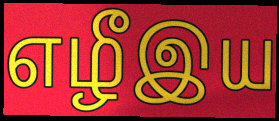
எழீஇய